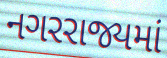
નગરરાજ્યમાં